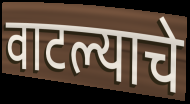
वाटल्याचे